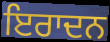
ਇਰਾਦਨ